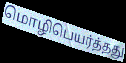
மொழிபெயர்த்தது